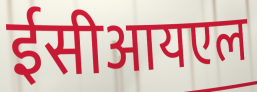
ईसीआयएल